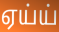
ஏய்ய்